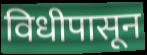
विधीपासून